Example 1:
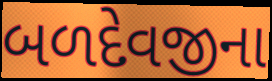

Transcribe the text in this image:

બળદેવજીના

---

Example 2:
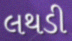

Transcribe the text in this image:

લથડી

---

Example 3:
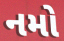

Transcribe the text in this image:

નમો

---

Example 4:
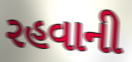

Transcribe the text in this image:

રહવાની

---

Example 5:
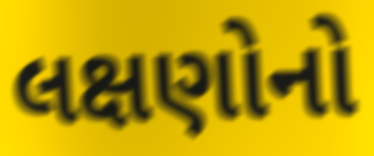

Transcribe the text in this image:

લક્ષણોનો